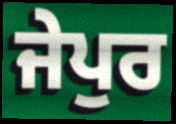
ਜੇਪੁਰ